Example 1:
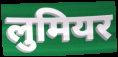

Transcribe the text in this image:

लुमियर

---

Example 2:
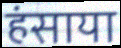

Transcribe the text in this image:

हंसाया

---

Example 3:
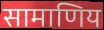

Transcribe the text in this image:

सामाणिय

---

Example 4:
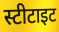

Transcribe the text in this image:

स्टीटाइट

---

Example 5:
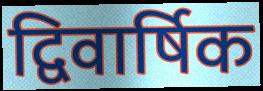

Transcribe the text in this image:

द्विवार्षिक